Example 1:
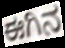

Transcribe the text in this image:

ಈಗಿನ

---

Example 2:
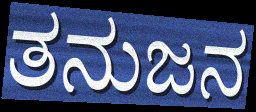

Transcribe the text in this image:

ತನುಜನ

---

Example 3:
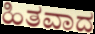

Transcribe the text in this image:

ಹಿತವಾದ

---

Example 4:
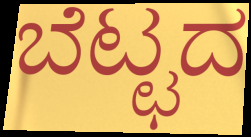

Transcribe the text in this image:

ಬೆಟ್ಟದ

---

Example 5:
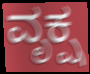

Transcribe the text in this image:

ವೃಕ್ಷ